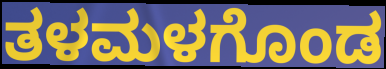
ತಳಮಳಗೊಂಡ